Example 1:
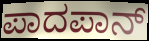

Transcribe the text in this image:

ಪಾದಪಾನ್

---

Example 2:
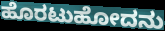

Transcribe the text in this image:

ಹೊರಟುಹೋದನು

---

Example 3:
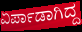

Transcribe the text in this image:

ಏರ್ಪಾಡಾಗಿದ್ದ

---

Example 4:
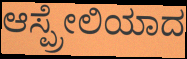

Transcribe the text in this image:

ಆಸ್ಪ್ರೇಲಿಯಾದ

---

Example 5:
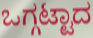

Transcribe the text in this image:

ಒಗ್ಗಟ್ಟಾದ